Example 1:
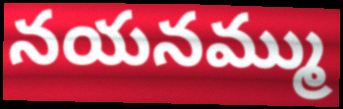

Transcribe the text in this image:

నయనమ్ము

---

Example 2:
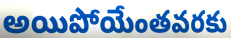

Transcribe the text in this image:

అయిపోయేంతవరకు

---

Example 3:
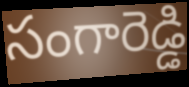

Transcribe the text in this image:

సంగారెడ్డి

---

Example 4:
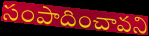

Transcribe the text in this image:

సంపాదించావని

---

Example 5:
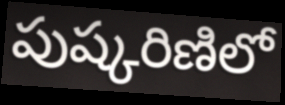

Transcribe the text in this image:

పుష్కరిణిలో